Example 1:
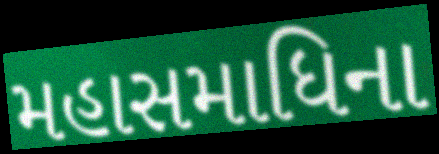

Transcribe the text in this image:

મહાસમાધિના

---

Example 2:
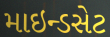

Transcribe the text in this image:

માઇન્ડસેટ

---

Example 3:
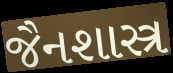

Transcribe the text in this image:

જૈનશાસ્ત્ર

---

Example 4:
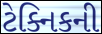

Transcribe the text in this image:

ટેક્નિકની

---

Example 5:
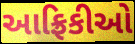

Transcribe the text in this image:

આફ્રિકીઓ